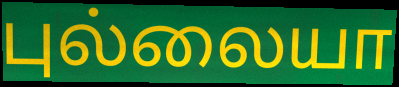
புல்லையா